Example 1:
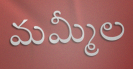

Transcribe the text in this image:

మమ్మీల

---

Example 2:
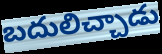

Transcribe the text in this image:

బదులిచ్చాడు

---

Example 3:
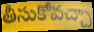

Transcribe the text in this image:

తీసుకోవచ్చా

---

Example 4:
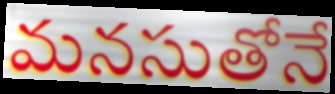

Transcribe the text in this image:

మనసుతోనే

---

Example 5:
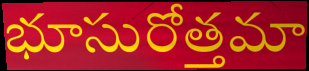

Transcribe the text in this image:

భూసురోత్తమా